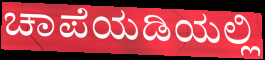
ಚಾಪೆಯಡಿಯಲ್ಲಿ